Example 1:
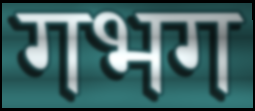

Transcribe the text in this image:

गभग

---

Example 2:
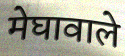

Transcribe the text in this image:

मेघावाले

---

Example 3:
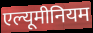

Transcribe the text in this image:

एल्‍यूमीनियम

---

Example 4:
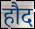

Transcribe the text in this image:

हौद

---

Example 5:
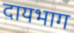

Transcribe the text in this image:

दायभाग